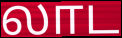
லாட